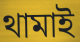
থামাই